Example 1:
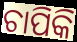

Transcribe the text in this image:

ଚାପିକି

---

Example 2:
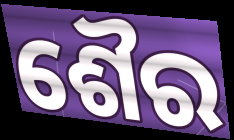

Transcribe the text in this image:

ଶୈର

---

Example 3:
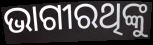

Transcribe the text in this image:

ଭାଗୀରଥିଙ୍କୁ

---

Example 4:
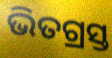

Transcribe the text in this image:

ଭିତଗ୍ରସ୍ତ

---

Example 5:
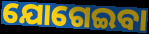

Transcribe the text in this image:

ଯୋଗେଇବା